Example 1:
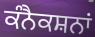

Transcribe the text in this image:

ਕੰਨੈਕਸ਼ਨਾਂ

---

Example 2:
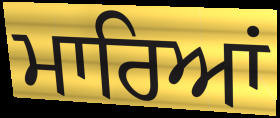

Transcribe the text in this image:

ਮਾਰਿਆਂ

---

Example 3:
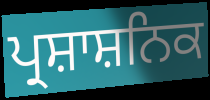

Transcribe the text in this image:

ਪ੍ਰਸ਼ਾਸ਼ਨਿਕ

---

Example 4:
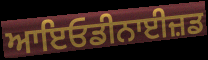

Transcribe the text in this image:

ਆਇਓਡੀਨਾਈਜ਼ਡ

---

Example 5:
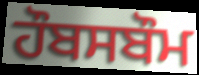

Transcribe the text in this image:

ਹੌਬਸਬੌਮ